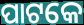
ପାଟକେ